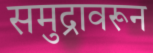
समुद्रावरून